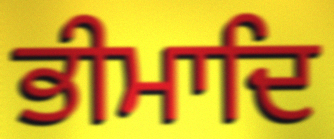
ਭੀਮਾਦਿ